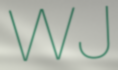
WJ